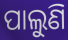
ପାଲୁଣି